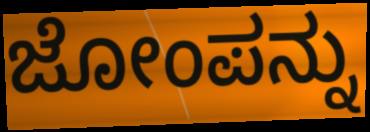
ಜೋಂಪನ್ನು